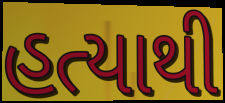
હત્યાથી